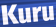
Kuru